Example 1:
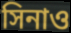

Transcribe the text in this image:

সিনাও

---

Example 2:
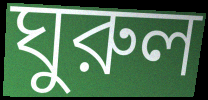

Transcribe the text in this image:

ঘুরুল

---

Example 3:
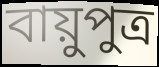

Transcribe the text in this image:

বায়ুপুত্র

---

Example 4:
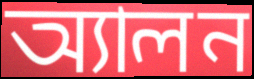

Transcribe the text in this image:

অ্যালন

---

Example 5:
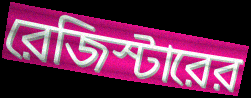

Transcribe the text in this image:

রেজিস্টারের